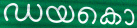
ഡയകൊ